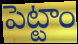
పెట్టాం